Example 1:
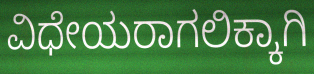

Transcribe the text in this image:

ವಿಧೇಯರಾಗಲಿಕ್ಕಾಗಿ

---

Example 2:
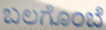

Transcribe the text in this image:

ಬಲಗೊಂಬೆ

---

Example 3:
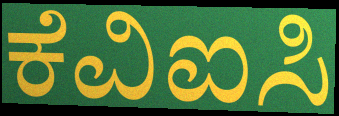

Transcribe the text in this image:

ಕೆವಿಐಸಿ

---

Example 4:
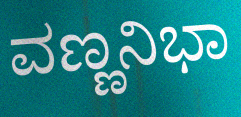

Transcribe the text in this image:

ವಣ್ಣನಿಭಾ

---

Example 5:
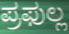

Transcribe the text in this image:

ಪ್ರಫುಲ್ಲ